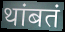
थांबतं